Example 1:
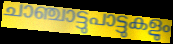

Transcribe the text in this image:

ചാഞ്ചാട്ടുപാട്ടുകളും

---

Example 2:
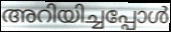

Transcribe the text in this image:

അറിയിച്ചപ്പോൾ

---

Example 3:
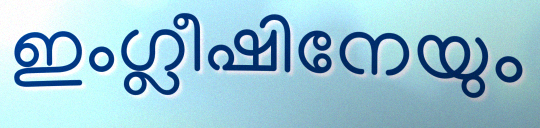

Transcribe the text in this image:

ഇംഗ്ലീഷിനേയും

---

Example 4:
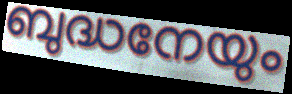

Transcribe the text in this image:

ബുദ്ധനേയും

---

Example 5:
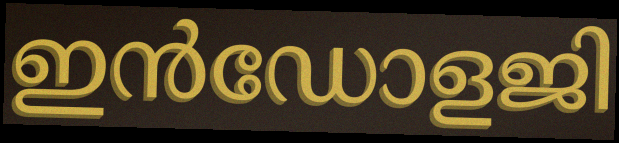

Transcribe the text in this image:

ഇൻഡോളജി